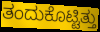
ತಂದುಕೊಟ್ಟಿತ್ತು